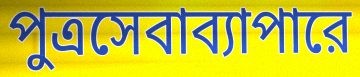
পুত্রসেবাব্যাপারে